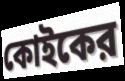
কোইকের